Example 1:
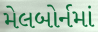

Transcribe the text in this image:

મેલબોર્નમાં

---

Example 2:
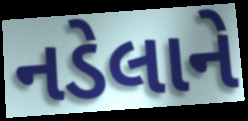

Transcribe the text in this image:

નડેલાને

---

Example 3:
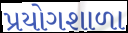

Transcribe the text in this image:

પ્રયોગશાળા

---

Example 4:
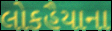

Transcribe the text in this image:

લોકહૈયાના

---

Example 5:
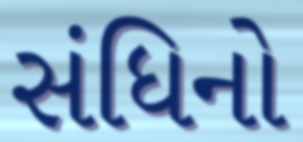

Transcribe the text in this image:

સંધિનો